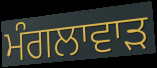
ਮੰਗਲਾਵਾੜ